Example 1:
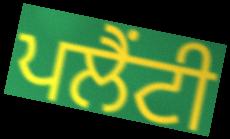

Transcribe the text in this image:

ਪਲੈਂਟੀ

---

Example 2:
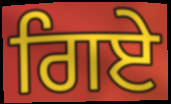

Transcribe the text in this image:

ਗਿਏ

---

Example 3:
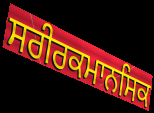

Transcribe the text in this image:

ਸਰੀਰਕਮਾਨਸਿਕ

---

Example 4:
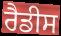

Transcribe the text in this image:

ਰੈਡੀਸ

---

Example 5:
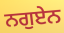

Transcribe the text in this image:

ਨਗੁਏਨ